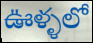
ఊళ్ళలో